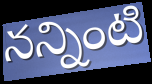
నన్నింటి